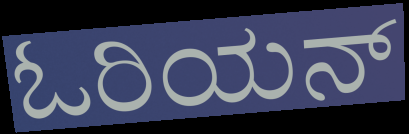
ಓರಿಯನ್